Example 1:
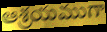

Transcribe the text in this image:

ఆశ్రయముగా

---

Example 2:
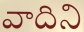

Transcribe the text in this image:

వాదిని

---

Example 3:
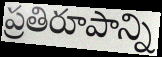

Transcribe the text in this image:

ప్రతిరూపాన్ని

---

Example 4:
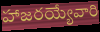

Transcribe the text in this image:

హాజరయ్యేవారి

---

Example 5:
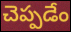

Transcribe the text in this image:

చెప్పడేం